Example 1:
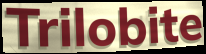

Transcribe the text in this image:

Trilobite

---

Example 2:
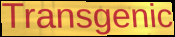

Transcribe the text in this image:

Transgenic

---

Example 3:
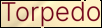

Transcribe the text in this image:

Torpedo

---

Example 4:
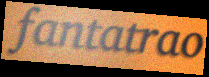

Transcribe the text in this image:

fantatrao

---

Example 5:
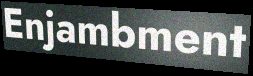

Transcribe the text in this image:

Enjambment